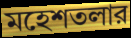
মহেশতলার